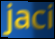
jaci